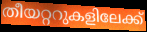
തീയറ്ററുകളിലേക്ക്